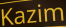
Kazim